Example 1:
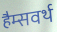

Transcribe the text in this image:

हैम्सवर्थ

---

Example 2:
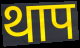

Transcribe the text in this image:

थाप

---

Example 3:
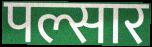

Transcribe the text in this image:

पल्सार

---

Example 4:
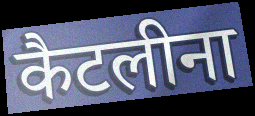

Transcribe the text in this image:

कैटलीना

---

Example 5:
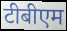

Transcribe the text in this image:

टीबीएम